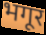
भगूर